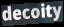
decoity